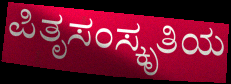
ಪಿತೃಸಂಸ್ಕೃತಿಯ